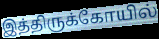
இத்திருக்கோயில்